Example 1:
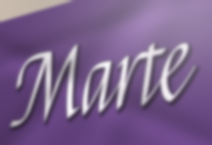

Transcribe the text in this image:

Marte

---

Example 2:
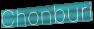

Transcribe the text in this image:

Chonburi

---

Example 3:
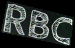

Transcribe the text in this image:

RBC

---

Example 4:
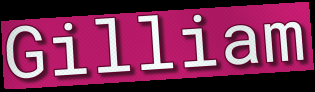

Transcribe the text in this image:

Gilliam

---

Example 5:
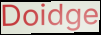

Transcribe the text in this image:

Doidge